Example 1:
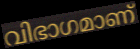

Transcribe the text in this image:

വിഭാഗമാണ്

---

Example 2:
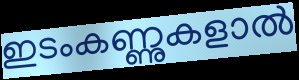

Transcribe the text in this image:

ഇടംകണ്ണുകളാൽ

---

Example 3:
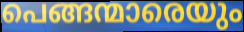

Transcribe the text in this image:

പെങ്ങന്മാരെയും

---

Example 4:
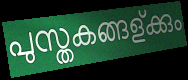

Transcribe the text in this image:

പുസ്തകങ്ങള്ക്കും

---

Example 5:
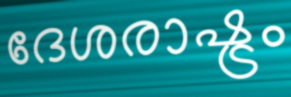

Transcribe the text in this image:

ദേശരാഷ്ട്രം